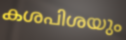
കശപിശയും